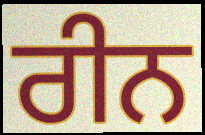
ਰੀਨ